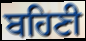
ਬਹਿਣੀ